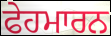
ਫੇਹਮਾਰਨ